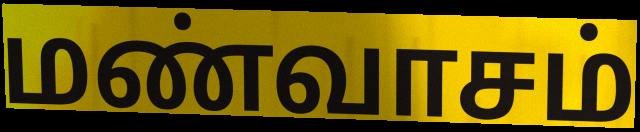
மண்வாசம்